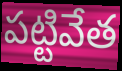
పట్టివేత